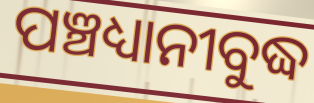
ପଞ୍ଚଧ୍ୟାନୀବୁଦ୍ଧ